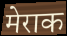
मेराक